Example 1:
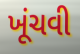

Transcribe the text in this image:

ખૂંચવી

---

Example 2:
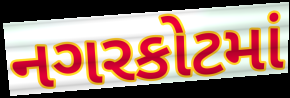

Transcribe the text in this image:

નગરકોટમાં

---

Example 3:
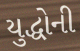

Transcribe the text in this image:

યુદ્ધોની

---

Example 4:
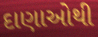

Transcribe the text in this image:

દાણાઓથી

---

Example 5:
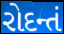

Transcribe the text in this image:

રોદન્તં